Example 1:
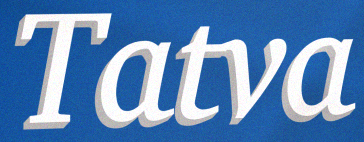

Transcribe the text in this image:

Tatva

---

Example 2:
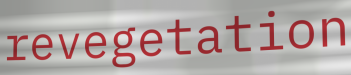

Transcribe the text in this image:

revegetation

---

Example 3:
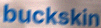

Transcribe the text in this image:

buckskin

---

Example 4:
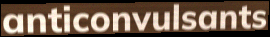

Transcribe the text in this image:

anticonvulsants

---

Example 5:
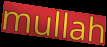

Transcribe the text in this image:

mullah